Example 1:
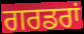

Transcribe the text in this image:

ਗਰਡਰਾਂ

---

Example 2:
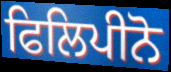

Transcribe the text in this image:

ਫਿਲਿਪੀਨੋ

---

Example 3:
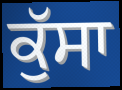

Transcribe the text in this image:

ਕੁੱਸਾ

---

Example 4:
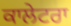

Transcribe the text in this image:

ਕਾਲੇਟਰਾ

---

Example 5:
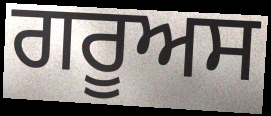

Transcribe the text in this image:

ਗਰੂਅਸ